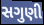
સગુણી